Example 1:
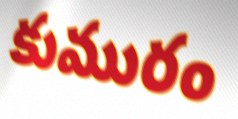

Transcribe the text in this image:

కుమురం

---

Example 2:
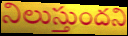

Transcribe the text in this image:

నిలుస్తుందని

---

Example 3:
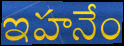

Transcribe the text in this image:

ఇహనేం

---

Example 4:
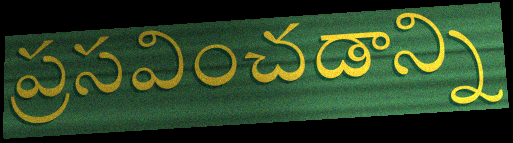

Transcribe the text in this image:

ప్రసవించడాన్ని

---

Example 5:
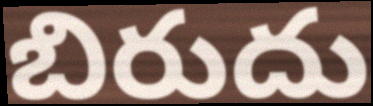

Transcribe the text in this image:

బిరుదు